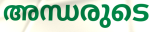
അന്ധരുടെ